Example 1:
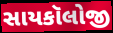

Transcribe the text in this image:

સાયકૉલોજી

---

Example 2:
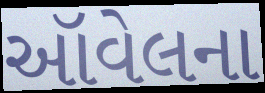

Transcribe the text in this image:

ઑવેલના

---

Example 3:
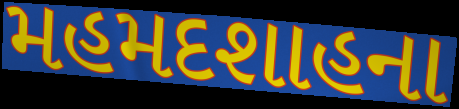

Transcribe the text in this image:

મહમદશાહના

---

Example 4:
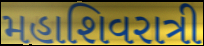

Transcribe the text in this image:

મહાશિવરાત્રી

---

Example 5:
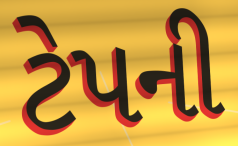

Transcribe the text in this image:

ટેપની